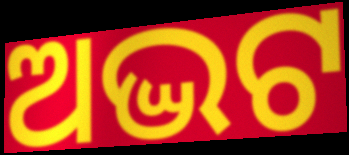
ଅଦ୍ଭଟ